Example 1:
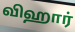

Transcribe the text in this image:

விஹார்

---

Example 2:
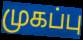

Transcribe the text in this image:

முகப்பு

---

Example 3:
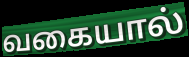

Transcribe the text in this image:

வகையால்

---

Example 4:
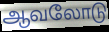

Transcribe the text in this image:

ஆவலோடு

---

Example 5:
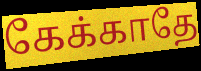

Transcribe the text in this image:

கேக்காதே